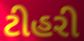
ટીહરી